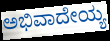
ಅಭಿವಾದೇಯ್ಯ